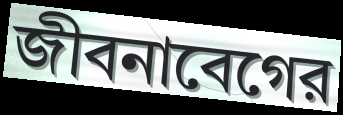
জীবনাবেগের